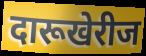
दारूखेरीज